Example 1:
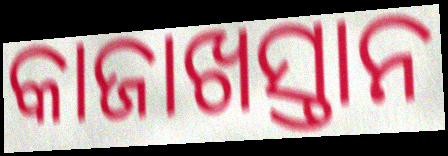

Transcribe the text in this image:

କାଜାଖସ୍ତାନ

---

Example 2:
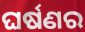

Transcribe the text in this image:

ଘର୍ଷଣର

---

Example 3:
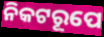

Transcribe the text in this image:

ନିକଟରୂପେ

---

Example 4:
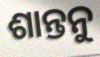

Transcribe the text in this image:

ଶାନ୍ତନୁ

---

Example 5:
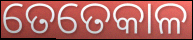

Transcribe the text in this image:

ତେତେକାଳ